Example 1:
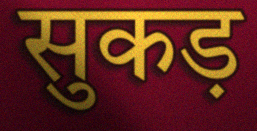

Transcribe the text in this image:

सुकड़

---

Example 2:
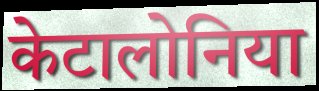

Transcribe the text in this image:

केटालोनिया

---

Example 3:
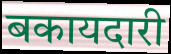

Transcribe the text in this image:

बकायदारी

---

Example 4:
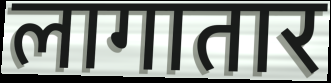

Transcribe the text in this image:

लागातार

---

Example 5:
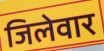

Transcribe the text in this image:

जिलेवार